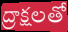
ద్రాక్షలతో